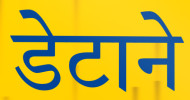
डेटाने